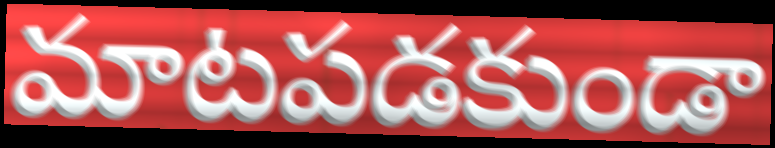
మాటపడకుండా